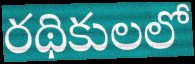
రథికులలో